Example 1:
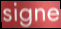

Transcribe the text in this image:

signe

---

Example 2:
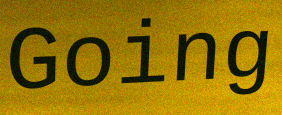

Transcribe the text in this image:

Going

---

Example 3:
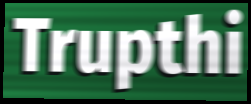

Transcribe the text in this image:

Trupthi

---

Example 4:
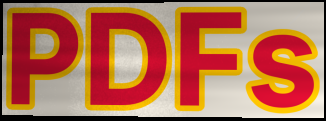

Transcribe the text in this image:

PDFs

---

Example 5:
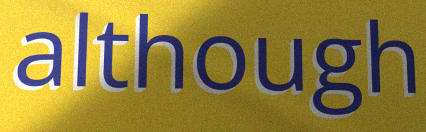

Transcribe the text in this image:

although